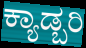
ಕ್ಯಾಡ್ಬರಿ